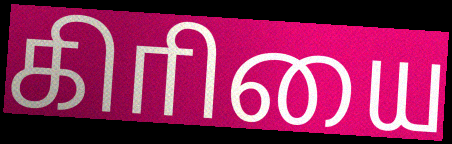
கிரியை